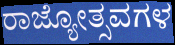
ರಾಜ್ಯೋತ್ಸವಗಳ